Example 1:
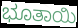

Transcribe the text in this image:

ಭೂತಾಯಿ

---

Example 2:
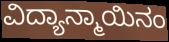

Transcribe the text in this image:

ವಿದ್ಯಾನ್ಮಾಯಿನಂ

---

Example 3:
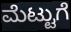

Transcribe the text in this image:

ಮೆಟ್ಟುಗೆ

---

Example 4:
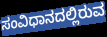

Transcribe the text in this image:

ಸಂವಿಧಾನದಲ್ಲಿರುವ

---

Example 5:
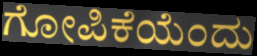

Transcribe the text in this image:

ಗೋಪಿಕೆಯೆಂದು